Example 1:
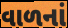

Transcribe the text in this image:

વાળનાં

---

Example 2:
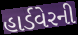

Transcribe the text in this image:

હાર્ડવેરની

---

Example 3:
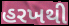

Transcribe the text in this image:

હરખથી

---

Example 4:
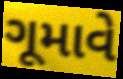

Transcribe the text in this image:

ગૂમાવે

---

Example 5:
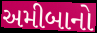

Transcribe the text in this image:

અમીબાનો